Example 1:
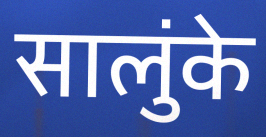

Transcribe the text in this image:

सालुंके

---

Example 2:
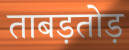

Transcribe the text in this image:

ताबड़तोड़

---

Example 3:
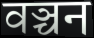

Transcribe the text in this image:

वञ्चन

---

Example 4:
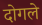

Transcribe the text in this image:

दोगले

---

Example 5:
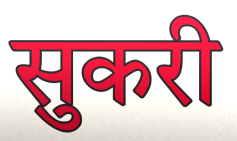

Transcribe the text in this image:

सुकरी